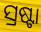
ସ୍ରଷ୍ଟା